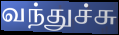
வந்துச்சு